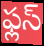
ఫ్లస్